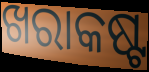
ଖରାକଷ୍ଟ